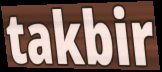
takbir